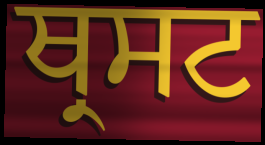
ਥ੍ਰਸਟ